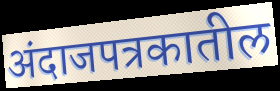
अंदाजपत्रकातील